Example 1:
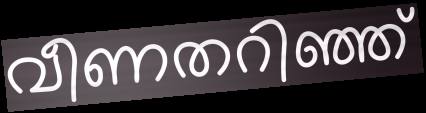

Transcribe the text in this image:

വീണതറിഞ്ഞ്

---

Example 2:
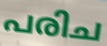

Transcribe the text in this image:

പരിച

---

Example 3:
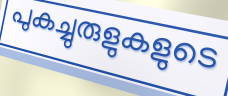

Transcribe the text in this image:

പുകച്ചുരുളുകളുടെ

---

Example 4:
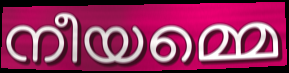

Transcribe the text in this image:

നീയമ്മെ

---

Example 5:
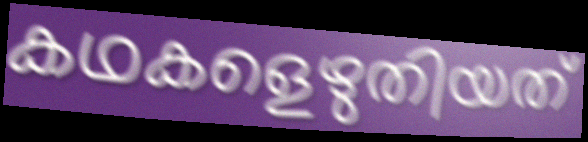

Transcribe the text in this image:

കഥകളെഴുതിയത്